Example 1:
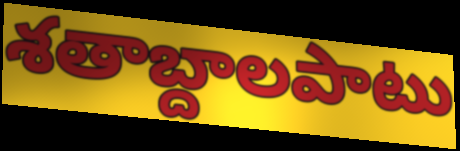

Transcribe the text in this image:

శతాబ్దాలపాటు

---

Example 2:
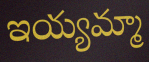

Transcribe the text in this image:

ఇయ్యమ్మా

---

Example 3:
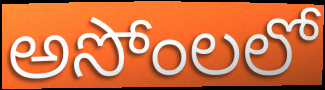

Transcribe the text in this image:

అసోంలలో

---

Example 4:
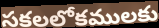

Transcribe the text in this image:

సకలలోకములకు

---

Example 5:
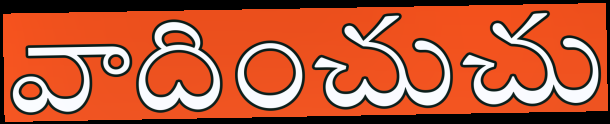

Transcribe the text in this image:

వాదించుచు